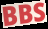
BBS